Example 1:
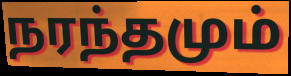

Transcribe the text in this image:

நரந்தமும்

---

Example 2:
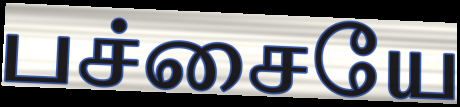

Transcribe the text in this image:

பச்சையே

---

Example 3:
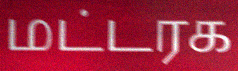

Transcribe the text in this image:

மட்டரக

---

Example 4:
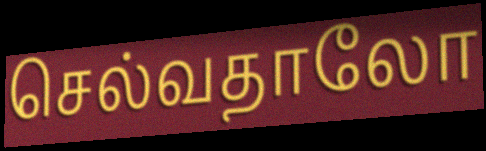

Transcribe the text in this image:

செல்வதாலோ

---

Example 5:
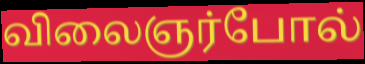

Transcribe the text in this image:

விலைஞர்போல்